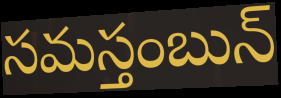
సమస్తంబున్